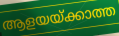
ആളയയ്ക്കാത്ത